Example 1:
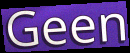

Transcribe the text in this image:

Geen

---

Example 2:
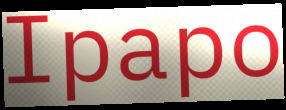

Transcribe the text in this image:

Ipapo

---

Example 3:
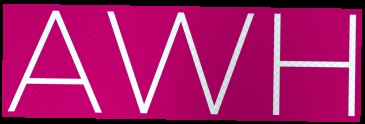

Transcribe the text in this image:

AWH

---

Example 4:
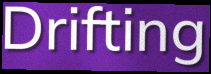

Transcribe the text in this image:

Drifting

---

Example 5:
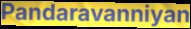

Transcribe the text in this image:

Pandaravanniyan